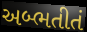
અબ્ભતીતં